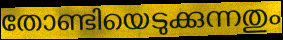
തോണ്ടിയെടുക്കുന്നതും